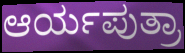
ಆರ್ಯಪುತ್ರಾ